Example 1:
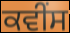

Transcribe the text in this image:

ਕਵੀਂਸ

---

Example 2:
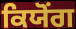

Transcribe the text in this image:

ਕਿਯੋਂਗ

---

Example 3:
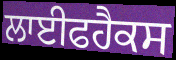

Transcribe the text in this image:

ਲਾਈਫਹੈਕਸ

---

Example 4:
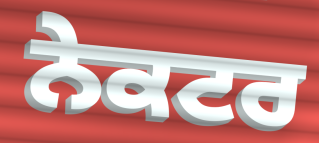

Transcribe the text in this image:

ਨੇਕਟਰ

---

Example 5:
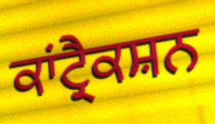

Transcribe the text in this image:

ਕਾਂਟ੍ਰੈਕਸ਼ਨ